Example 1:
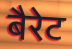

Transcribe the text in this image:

बैरेट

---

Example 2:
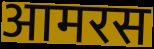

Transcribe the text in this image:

आमरस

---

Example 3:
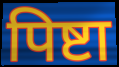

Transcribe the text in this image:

पिष्टा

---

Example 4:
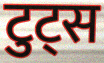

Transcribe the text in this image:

टुट्स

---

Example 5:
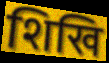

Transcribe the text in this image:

शिखि